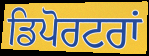
ਡਿਪੋਰਟਰਾਂ